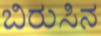
ಬಿರುಸಿನ